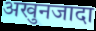
अखुनजादा